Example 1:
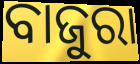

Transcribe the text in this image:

ବାଜୁରା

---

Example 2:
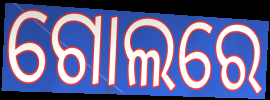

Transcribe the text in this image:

ଗୋଲରେ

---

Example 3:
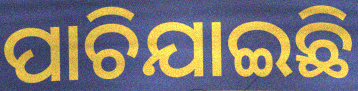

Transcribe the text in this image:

ପାଚିଯାଇଛି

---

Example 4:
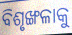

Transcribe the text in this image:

ବିଶୃଙ୍ଖଳାକୁ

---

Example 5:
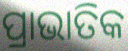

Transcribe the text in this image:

ପ୍ରାଭାତିକ